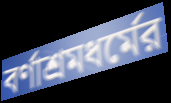
বর্ণাশ্রমধর্মের